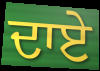
ਦਾਏ